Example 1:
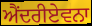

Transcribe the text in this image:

ਐਂਦਰੀਏਵਨਾ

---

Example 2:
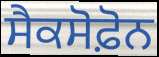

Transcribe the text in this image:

ਸੈਕਸੋਫ਼ੋਨ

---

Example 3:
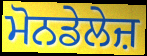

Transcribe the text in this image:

ਮੋਨਡੇਲੇਜ਼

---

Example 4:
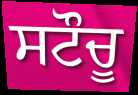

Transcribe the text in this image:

ਸਟੌਚੂ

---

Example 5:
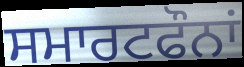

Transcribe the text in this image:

ਸਮਾਰਟਫੌਨਾਂ